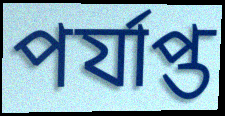
পৰ্যাপ্ত